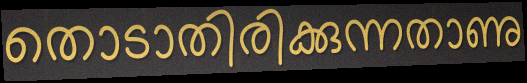
തൊടാതിരിക്കുന്നതാണു